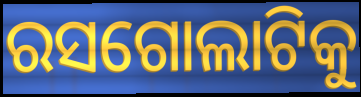
ରସଗୋଲାଟିକୁ